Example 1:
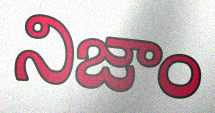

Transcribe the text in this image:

నిజాం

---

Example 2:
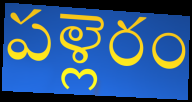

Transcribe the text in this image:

పళ్లెరం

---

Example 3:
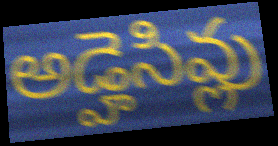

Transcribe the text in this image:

అడ్హెసివ్లు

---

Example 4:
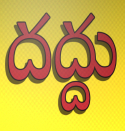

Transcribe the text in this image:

దద్దు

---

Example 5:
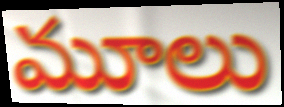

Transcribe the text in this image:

మూలు